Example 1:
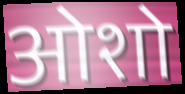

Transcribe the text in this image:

ओशो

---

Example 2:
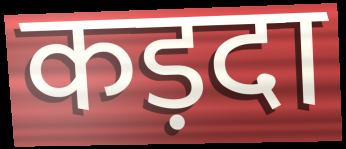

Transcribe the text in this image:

कड़दा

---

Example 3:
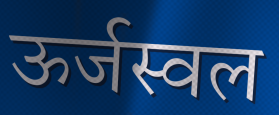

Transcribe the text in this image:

ऊर्जस्वल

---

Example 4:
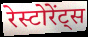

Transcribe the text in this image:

रेस्‍टोरेंट्स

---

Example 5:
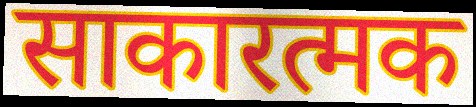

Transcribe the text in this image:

साकारत्मक